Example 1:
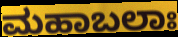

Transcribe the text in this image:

ಮಹಾಬಲಾಃ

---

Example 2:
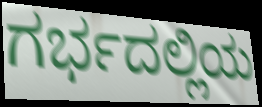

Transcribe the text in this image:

ಗರ್ಭದಲ್ಲಿಯ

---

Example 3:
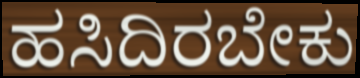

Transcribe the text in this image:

ಹಸಿದಿರಬೇಕು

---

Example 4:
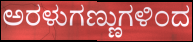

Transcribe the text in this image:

ಅರಳುಗಣ್ಣುಗಳಿಂದ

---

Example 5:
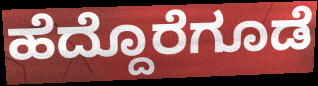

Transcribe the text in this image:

ಹೆದ್ದೊರೆಗೂಡೆ